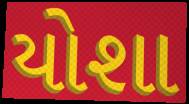
યોશા